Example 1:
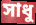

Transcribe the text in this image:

সাধু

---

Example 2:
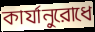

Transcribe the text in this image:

কার্যানুরোধে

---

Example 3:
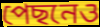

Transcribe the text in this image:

পেছনেও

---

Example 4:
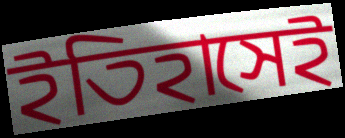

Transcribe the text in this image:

ইতিহাসেই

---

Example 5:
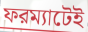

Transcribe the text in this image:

ফরম্যাটেই